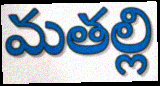
మతల్లి